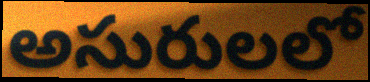
అసురులలో